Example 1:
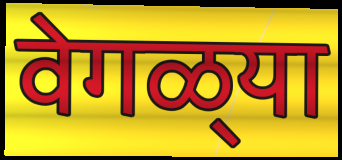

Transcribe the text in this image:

वेगळ्‌या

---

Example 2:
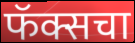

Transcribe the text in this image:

फॅक्सचा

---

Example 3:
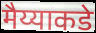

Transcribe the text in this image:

मैय्याकडे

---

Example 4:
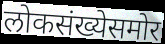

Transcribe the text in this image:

लोकसंख्येसमोर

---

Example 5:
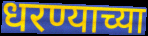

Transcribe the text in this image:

धरण्याच्या